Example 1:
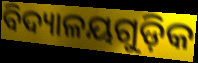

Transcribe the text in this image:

ବିଦ୍ୟାଳୟଗୁଡ଼ିକ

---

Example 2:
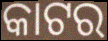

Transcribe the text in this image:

କାଟର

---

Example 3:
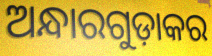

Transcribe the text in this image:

ଅନ୍ଧାରଗୁଡ଼ାକର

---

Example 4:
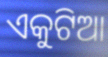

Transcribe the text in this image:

ଏକୁଟିଆ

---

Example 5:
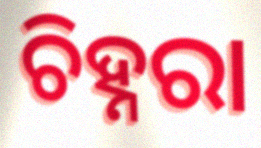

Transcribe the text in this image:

ଚିହ୍ନରା